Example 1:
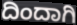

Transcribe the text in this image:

ದಿಂದಾಗಿ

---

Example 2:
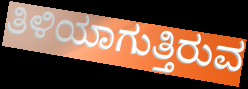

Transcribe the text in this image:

ತಿಳಿಯಾಗುತ್ತಿರುವ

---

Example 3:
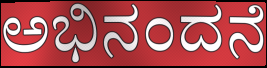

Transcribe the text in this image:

ಅಭಿನಂದನೆ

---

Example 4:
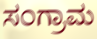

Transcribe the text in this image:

ಸಂಗ್ರಾಮ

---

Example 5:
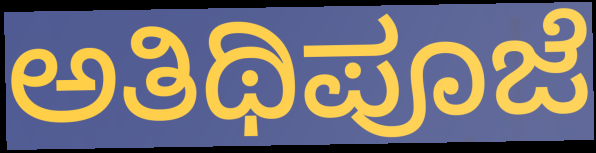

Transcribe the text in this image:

ಅತಿಥಿಪೂಜೆ